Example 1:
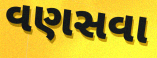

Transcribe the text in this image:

વણસવા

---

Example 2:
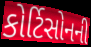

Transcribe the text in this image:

કોર્ટિસોનની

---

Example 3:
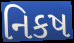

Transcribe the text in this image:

નિકષ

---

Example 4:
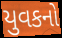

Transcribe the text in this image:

યુવકનો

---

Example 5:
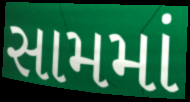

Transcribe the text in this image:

સામમાં